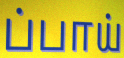
ப்பாய்